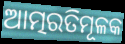
ଆତ୍ମରତିମୂଳକ